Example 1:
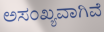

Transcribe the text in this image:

ಅಸಂಖ್ಯವಾಗಿವೆ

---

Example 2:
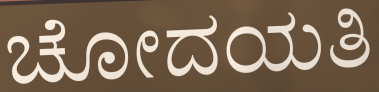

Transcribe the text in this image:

ಚೋದಯತಿ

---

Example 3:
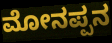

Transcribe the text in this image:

ಮೋನಪ್ಪನ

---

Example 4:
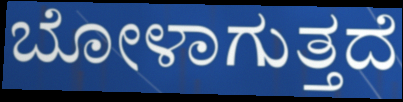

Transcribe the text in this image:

ಬೋಳಾಗುತ್ತದೆ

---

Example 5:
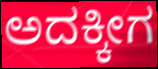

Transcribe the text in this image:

ಅದಕ್ಕೀಗ